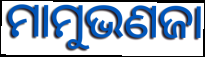
ମାମୁଭଣଜା